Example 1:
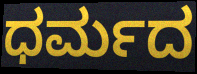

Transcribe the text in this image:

ಧರ್ಮದ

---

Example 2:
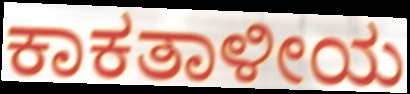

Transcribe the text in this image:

ಕಾಕತಾಳೀಯ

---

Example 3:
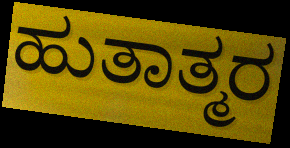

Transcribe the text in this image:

ಹುತಾತ್ಮರ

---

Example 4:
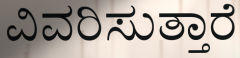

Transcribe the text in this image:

ವಿವರಿಸುತ್ತಾರೆ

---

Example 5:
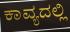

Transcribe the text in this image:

ಕಾವ್ಯದಲ್ಲಿ